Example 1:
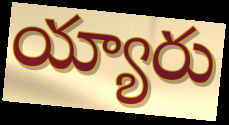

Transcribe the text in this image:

య్యారు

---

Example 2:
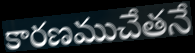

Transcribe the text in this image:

కారణముచేతనే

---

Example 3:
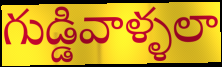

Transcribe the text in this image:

గుడ్డివాళ్ళలా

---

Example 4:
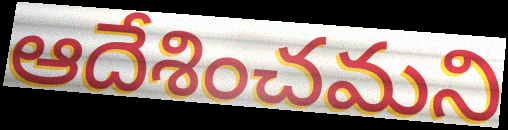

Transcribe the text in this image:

ఆదేశించమని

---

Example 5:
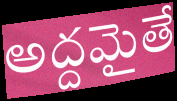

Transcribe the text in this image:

అద్దమైతే